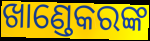
ଖାଣ୍ଡେକରଙ୍କ